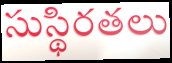
సుస్థిరతలు